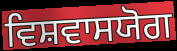
ਵਿਸ਼ਵਾਸਯੋਗ